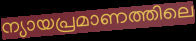
ന്യായപ്രമാണത്തിലെ